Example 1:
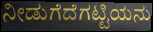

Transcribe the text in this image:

ನೀಡುಗೆದೆಗಟ್ಟಿಯನು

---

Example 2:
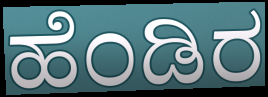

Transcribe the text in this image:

ಹೆಂಡಿರ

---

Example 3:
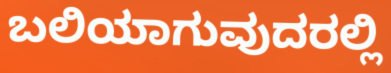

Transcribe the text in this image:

ಬಲಿಯಾಗುವುದರಲ್ಲಿ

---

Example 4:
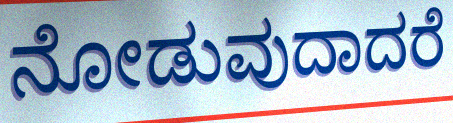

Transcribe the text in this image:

ನೋಡುವುದಾದರೆ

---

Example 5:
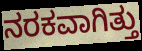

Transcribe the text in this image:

ನರಕವಾಗಿತ್ತು